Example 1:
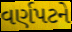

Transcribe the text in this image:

વર્ણપટને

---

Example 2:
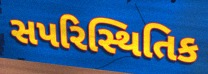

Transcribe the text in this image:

સપરિસ્થિતિક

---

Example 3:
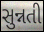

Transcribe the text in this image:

સુન્નતી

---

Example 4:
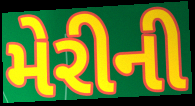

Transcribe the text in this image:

મેરીની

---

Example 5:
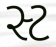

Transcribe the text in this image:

સ્ટ